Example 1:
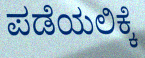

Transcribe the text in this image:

ಪಡೆಯಲಿಕ್ಕೆ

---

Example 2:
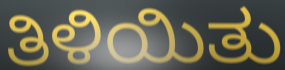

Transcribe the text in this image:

ತಿಳಿಯಿತು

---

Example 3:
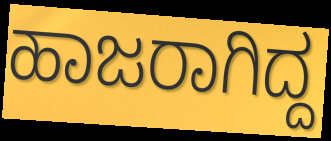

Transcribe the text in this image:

ಹಾಜರಾಗಿದ್ದ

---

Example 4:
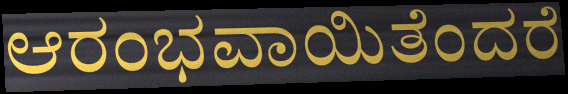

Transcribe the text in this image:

ಆರಂಭವಾಯಿತೆಂದರೆ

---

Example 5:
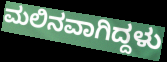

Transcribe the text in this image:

ಮಲಿನವಾಗಿದ್ದಳು